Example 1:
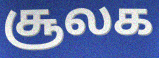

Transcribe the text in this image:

சூலக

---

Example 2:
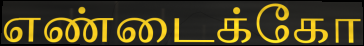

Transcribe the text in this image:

எண்டைக்கோ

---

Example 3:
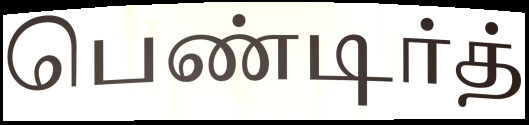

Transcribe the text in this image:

பெண்டிர்த்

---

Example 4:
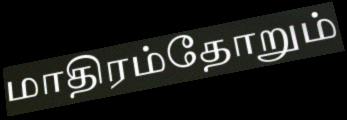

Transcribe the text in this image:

மாதிரம்தோறும்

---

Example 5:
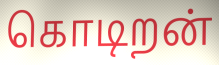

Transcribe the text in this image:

கொடிறன்